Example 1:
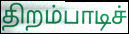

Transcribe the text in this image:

திறம்பாடிச்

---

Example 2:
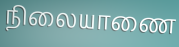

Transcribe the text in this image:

நிலையாணை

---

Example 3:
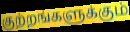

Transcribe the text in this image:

குற்றங்களுக்கும்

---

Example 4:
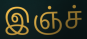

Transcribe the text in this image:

இஞ்ச்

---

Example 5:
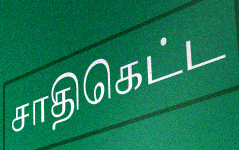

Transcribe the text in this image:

சாதிகெட்ட